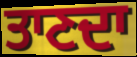
ਤਾਣਦਾ